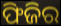
ଫିଜିର